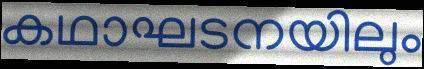
കഥാഘടനയിലും